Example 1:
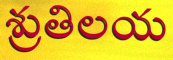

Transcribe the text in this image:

శ్రుతిలయ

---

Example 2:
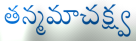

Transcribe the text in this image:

తన్మమాచక్ష్వ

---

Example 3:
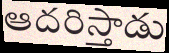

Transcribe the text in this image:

ఆదరిస్తాడు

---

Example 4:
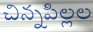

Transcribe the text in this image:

చిన్నపిల్లల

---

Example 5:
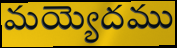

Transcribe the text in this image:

మయ్యెదము